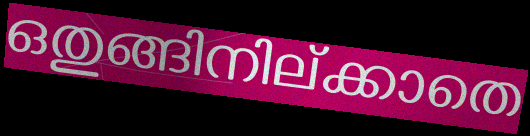
ഒതുങ്ങിനില്ക്കാതെ